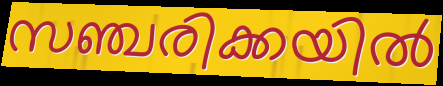
സഞ്ചരിക്കയിൽ